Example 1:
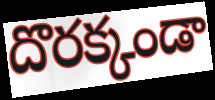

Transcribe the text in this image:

దొరక్కండా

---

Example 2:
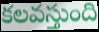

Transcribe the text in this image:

కలవస్తుంది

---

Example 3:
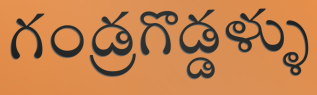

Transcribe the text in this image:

గండ్రగొడ్డళ్ళు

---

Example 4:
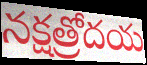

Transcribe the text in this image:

నక్షత్రోదయ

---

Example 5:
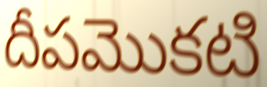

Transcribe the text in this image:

దీపమొకటి